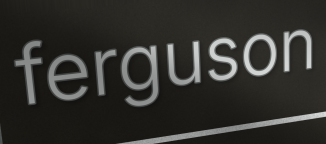
ferguson